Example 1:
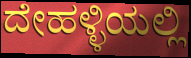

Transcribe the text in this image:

ದೇಹಳ್ಳಿಯಲ್ಲಿ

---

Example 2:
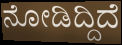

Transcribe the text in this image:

ನೋಡಿದ್ದಿದೆ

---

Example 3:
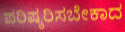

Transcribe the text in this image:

ಪರಿಷ್ಕರಿಸಬೇಕಾದ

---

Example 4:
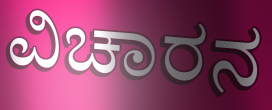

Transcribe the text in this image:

ವಿಚಾರನ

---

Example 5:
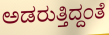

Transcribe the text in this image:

ಅಡರುತ್ತಿದ್ದಂತೆ